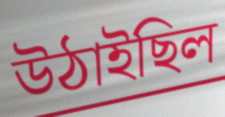
উঠাইছিল